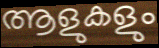
ആളുകളും